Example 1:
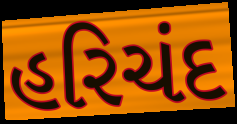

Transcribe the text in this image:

હરિચંદ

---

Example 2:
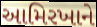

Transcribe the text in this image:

આમિરખાને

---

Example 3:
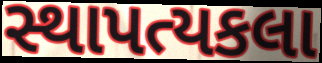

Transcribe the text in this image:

સ્થાપત્યકલા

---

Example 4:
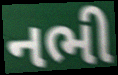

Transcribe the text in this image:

નભી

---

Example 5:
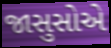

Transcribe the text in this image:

જાસુસોએ